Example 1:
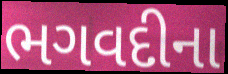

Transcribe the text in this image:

ભગવદીના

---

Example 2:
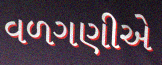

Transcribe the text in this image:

વળગણીએ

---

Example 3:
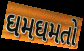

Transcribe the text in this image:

ઘમઘમતો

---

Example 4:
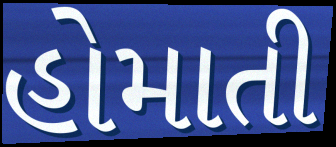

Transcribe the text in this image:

હોમાતી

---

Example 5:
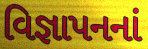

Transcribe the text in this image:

વિજ્ઞાપનનાં